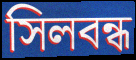
সিলবন্ধ